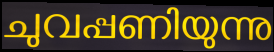
ചുവപ്പണിയുന്നു